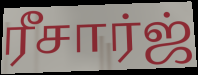
ரீசார்ஜ்